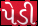
પેડી